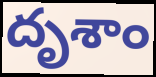
దృశాం